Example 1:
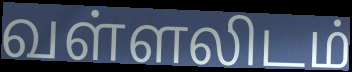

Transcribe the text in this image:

வள்ளலிடம்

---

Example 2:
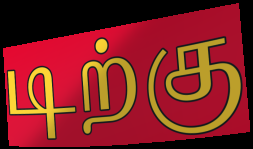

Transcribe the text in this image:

டிற்கு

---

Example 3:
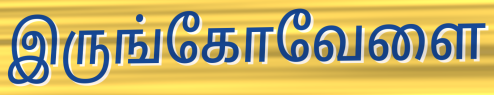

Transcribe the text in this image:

இருங்கோவேளை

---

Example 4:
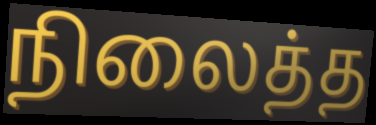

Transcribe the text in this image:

நிலைத்த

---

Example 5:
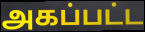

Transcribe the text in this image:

அகப்பட்ட